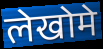
लेखोमे